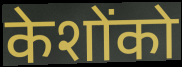
केशोंको